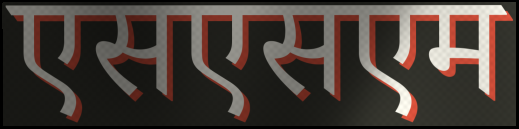
एसएसएम